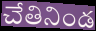
చేతినిండ